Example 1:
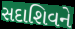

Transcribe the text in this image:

સદાશિવને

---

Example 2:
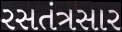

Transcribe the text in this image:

રસતંત્રસાર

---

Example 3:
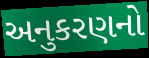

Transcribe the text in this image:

અનુકરણનો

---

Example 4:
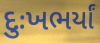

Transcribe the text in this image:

દુઃખભર્યાં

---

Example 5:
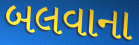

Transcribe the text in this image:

બલવાના